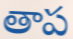
తాప